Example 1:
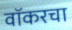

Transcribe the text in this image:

वॉकरचा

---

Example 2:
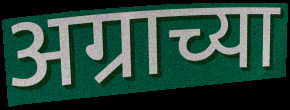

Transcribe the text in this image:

अग्राच्या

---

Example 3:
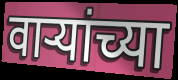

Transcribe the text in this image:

वाऱ्यांच्या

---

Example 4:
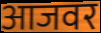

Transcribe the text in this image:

आजवर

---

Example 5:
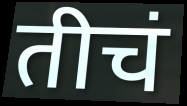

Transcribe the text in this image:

तीचं